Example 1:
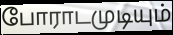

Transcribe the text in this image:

போராடமுடியும்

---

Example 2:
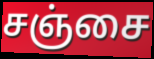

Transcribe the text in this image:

சஞ்சை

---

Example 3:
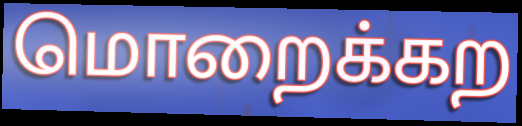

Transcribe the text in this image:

மொறைக்கற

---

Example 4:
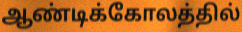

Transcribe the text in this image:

ஆண்டிக்கோலத்தில்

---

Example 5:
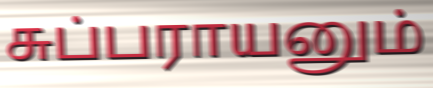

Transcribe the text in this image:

சுப்பராயனும்